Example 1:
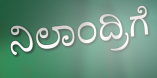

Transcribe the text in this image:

ನಿಲಾಂದ್ರಿಗೆ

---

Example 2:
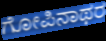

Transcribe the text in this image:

ಗೋಪಿನಾಥರ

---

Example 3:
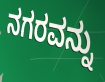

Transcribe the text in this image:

ನಗರವನ್ನು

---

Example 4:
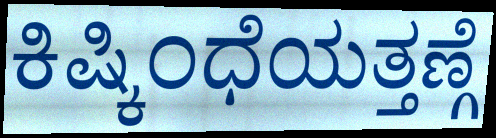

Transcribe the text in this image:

ಕಿಷ್ಕಿಂಧೆಯತ್ತಣ್ಗೆ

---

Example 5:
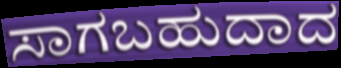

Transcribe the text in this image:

ಸಾಗಬಹುದಾದ